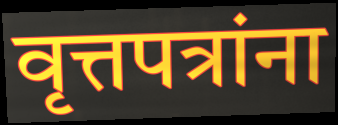
वृत्तपत्रांना